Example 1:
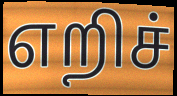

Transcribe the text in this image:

எறிச்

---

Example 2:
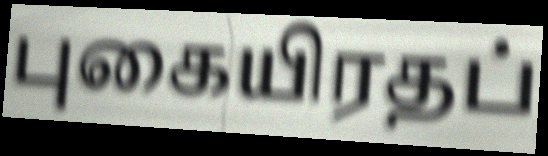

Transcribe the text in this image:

புகையிரதப்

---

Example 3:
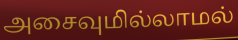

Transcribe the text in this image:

அசைவுமில்லாமல்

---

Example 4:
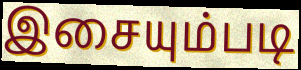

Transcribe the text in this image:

இசையும்படி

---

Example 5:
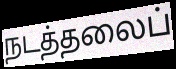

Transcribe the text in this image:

நடத்தலைப்